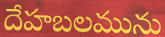
దేహబలమును